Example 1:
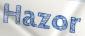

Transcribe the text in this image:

Hazor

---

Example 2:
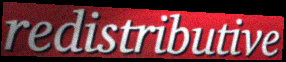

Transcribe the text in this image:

redistributive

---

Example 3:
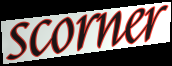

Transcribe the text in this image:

scorner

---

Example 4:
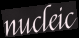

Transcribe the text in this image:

nucleic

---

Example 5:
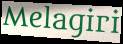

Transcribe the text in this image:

Melagiri